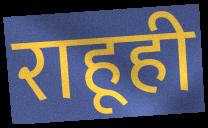
राहूही